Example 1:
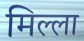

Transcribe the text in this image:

मिल्ला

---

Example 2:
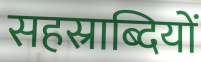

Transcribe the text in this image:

सहस्राब्दियों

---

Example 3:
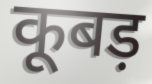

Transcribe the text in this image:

कूबड़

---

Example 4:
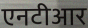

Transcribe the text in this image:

एनटीआर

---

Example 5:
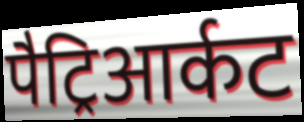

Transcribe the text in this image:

पैट्रिआर्कट